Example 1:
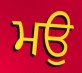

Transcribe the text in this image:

ਮਉ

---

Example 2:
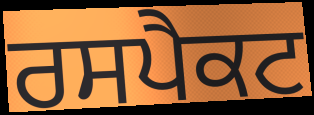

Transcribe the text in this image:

ਰਸਪੈਕਟ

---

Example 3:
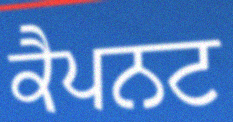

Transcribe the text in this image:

ਕੈਪਨਟ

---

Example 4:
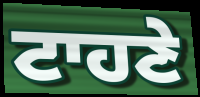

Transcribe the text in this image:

ਟਾਹਣੇ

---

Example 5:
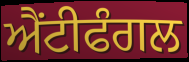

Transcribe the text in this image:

ਐਂਟੀਫੰਗਲ